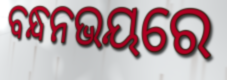
ବନ୍ଧନଭୟରେ